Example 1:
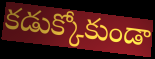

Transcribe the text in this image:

కడుక్కోకుండా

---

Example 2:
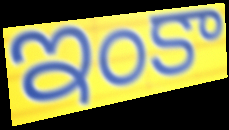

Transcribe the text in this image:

ఇంకా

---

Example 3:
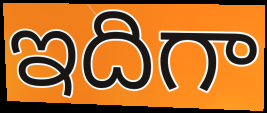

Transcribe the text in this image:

ఇదిగా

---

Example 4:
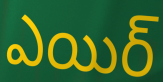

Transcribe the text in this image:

ఎయిర్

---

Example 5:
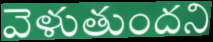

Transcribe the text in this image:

వెళుతుందని